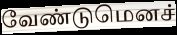
வேண்டுமெனச்